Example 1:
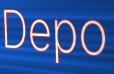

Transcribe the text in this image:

Depo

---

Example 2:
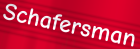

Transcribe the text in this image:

Schafersman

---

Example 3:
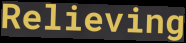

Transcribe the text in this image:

Relieving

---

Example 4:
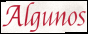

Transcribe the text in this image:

Algunos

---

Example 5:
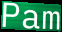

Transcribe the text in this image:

Pam